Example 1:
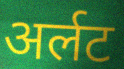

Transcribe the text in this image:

अर्लट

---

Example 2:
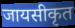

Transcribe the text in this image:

जायसीकृत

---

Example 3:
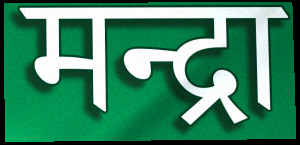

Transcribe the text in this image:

मन्द्रा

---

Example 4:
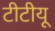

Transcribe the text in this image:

टीटीयू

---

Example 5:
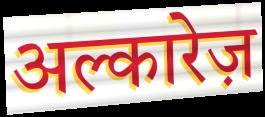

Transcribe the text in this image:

अल्कारेज़